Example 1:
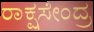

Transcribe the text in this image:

ರಾಕ್ಷಸೇಂದ್ರ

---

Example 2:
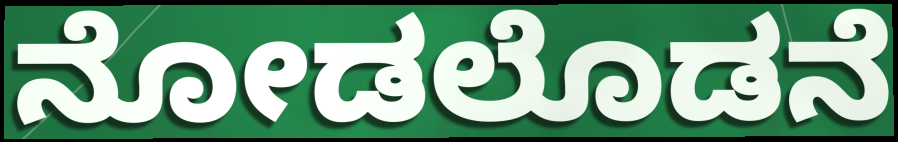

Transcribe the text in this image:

ನೋಡಲೊಡನೆ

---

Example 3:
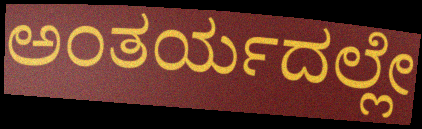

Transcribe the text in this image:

ಅಂತರ್ಯದಲ್ಲೇ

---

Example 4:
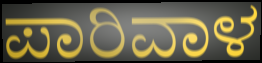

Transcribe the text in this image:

ಪಾರಿವಾಳ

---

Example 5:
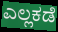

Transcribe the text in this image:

ಎಲ್ಲಕಡೆ